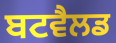
ਬਟਵੈਲਡ